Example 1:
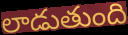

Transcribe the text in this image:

లాడుతుంది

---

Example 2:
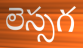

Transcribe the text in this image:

లెస్సగ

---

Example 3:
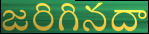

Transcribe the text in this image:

జరిగినదా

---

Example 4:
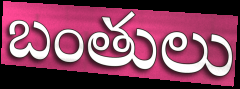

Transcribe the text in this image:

బంతులు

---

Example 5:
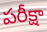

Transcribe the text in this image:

పరీక్షా